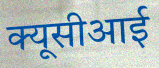
क्यूसीआई